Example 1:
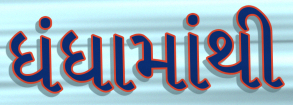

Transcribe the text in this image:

ધંધામાંથી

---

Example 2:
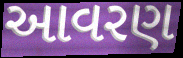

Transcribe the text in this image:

આવરણ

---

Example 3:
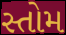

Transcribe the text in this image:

સ્તોમ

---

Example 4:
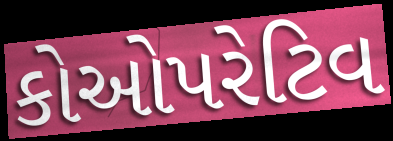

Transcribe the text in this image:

કોઓપરેટિવ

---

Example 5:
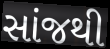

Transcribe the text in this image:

સાંજથી